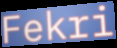
Fekri